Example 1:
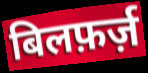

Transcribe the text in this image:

बिलफ़र्ज़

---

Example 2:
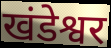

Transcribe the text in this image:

खंडेश्वर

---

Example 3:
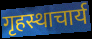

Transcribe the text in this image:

गृहस्थाचार्य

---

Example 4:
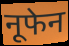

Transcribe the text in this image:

नूफेन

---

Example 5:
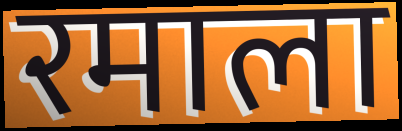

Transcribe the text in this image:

रमाला